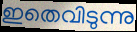
ഇതെവിടുന്നു